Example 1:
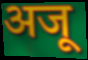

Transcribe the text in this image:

अजू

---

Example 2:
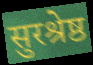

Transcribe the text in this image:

सुरश्रेष्ठ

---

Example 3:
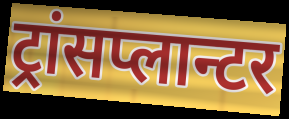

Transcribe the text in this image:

ट्रांसप्लान्टर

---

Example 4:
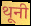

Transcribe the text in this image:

थूनी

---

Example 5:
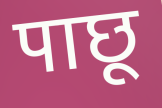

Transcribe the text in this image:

पाछू